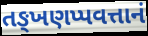
તઙ્ખણપ્પવત્તાનં